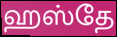
ஹஸ்தே